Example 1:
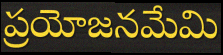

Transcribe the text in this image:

ప్రయోజనమేమి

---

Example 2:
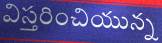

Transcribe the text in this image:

విస్తరించియున్న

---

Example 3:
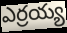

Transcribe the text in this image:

ఎర్రయ్య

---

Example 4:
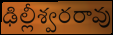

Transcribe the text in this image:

ఢిల్లీశ్వరరావు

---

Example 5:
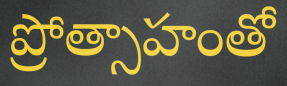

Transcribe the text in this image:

ప్రోత్సాహంతో